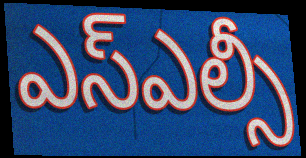
ఎస్ఎల్సీ